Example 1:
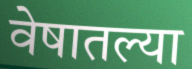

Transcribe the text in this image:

वेषातल्या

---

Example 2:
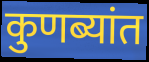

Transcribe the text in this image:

कुणब्यांत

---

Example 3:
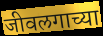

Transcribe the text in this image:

जीवलगाच्या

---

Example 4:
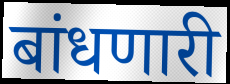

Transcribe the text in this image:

बांधणारी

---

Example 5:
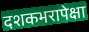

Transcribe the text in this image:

दशकभरापेक्षा